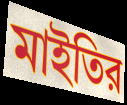
মাইতির